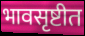
भावसृष्टीत